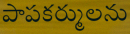
పాపకర్ములను